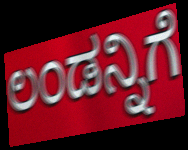
ಲಂಡನ್ನಿಗೆ